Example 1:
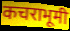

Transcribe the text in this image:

कचराभूमी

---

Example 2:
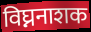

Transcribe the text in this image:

विघ्ननाशक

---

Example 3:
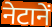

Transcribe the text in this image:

नेटानें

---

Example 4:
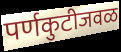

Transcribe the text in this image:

पर्णकुटीजवळ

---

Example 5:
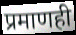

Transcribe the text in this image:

प्रमाणही